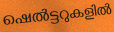
ഷെൽട്ടറുകളിൽ